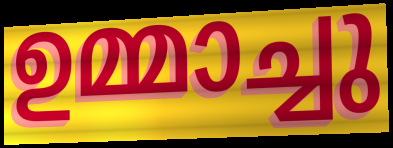
ഉമ്മാച്ചു